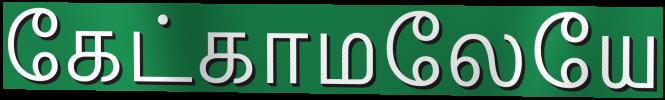
கேட்காமலேயே